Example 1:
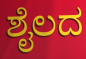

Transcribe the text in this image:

ಶೈಲದ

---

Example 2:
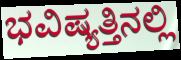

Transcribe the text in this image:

ಭವಿಷ್ಯತ್ತಿನಲ್ಲಿ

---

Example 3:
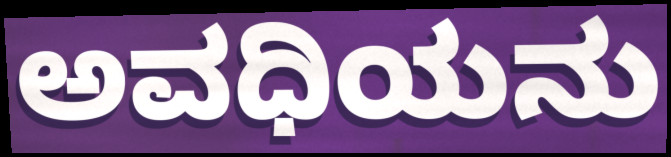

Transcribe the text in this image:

ಅವಧಿಯನು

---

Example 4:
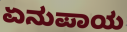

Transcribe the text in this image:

ಏನುಪಾಯ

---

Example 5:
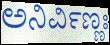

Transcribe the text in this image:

ಅನಿರ್ವಿಣ್ಣಃ